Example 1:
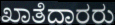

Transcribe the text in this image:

ಖಾತೆದಾರರು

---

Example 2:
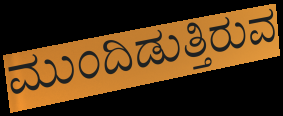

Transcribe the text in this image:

ಮುಂದಿಡುತ್ತಿರುವ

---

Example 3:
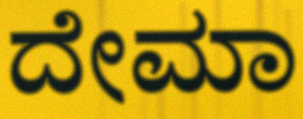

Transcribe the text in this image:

ದೇಮಾ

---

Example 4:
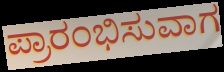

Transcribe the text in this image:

ಪ್ರಾರಂಭಿಸುವಾಗ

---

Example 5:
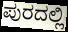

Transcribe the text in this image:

ಪುರದಲ್ಲಿ